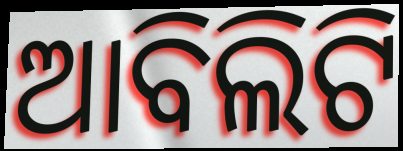
ଆବିଲିଟି